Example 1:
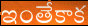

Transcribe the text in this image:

ఇంతేకాక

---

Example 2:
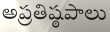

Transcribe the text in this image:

అప్రతిష్ఠపాలు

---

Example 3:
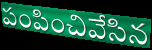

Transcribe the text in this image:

పంపించివేసిన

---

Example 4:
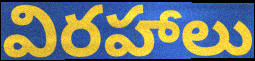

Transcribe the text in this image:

విరహాలు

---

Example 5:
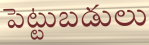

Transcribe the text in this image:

పెట్టుబడులు